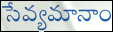
సేవ్యమానాం